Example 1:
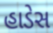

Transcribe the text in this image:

હાડેસ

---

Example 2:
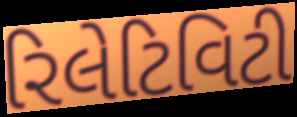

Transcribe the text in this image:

રિલેટિવિટી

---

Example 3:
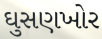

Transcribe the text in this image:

ઘુસણખોર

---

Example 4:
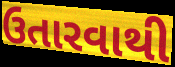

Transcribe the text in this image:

ઉતારવાથી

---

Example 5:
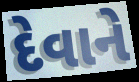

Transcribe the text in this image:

દેવાને